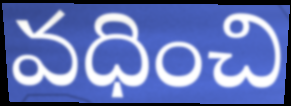
వధించి